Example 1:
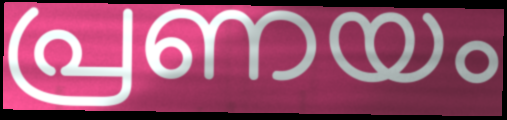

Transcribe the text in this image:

പ്രണയം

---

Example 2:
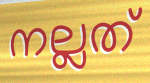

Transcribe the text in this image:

നല്ലത്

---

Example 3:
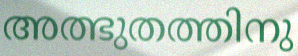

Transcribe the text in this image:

അത്ഭുതത്തിനു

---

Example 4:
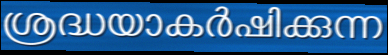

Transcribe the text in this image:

ശ്രദ്ധയാകർഷിക്കുന്ന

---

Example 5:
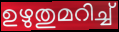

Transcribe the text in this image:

ഉഴുതുമറിച്ച്